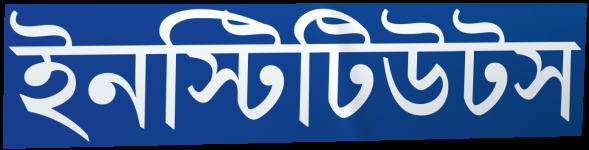
ইনস্টিটিউটস